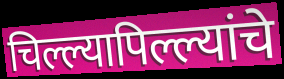
चिल्ल्यापिल्ल्यांचे